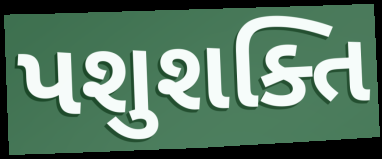
પશુશક્તિ